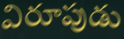
విరూపుడు